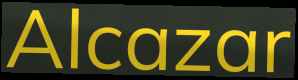
Alcazar